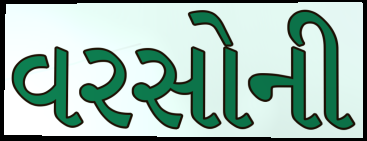
વરસોની